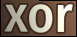
xor